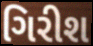
ગિરીશ